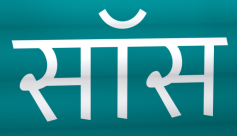
सॉस